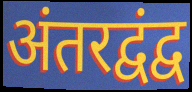
अंतरद्वंद्व